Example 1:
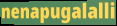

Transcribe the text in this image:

nenapugalalli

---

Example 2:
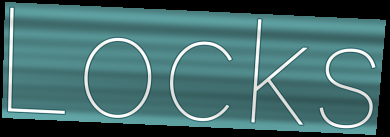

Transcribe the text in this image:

Locks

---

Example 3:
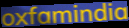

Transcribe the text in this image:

oxfamindia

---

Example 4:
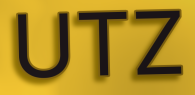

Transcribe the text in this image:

UTZ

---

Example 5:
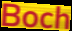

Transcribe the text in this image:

Boch